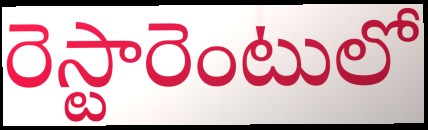
రెస్టారెంటులో